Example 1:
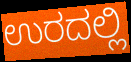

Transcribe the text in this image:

ಉರದಲ್ಲಿ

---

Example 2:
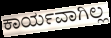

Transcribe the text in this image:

ಕಾರ್ಯವಾಗಿಲ್ಲ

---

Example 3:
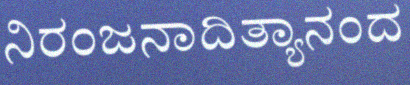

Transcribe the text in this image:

ನಿರಂಜನಾದಿತ್ಯಾನಂದ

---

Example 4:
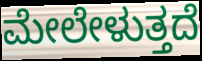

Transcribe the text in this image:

ಮೇಲೇಳುತ್ತದೆ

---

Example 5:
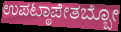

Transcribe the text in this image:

ಉಪಟ್ಠಾಪೇತಬ್ಬೋ